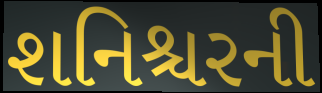
શનિશ્ચરની